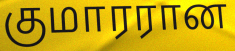
குமாரரான